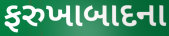
ફરુખાબાદના